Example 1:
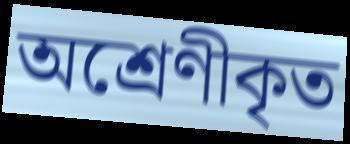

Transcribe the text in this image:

অশ্ৰেণীকৃত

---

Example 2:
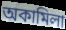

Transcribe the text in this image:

অকামিলা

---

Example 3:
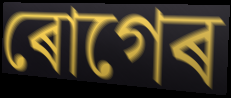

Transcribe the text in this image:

ৰোগেৰ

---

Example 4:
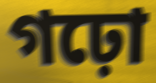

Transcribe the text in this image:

গঢ়ো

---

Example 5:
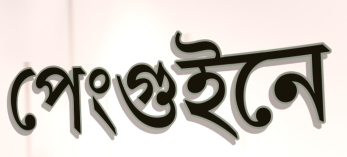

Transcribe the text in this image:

পেংগুইনে